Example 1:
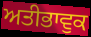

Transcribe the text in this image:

ਅਤੀਭਾਵੁਕ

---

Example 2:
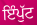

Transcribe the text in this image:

ਇੰਪੁੱਟ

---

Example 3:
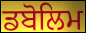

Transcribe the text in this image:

ਡਬੋਲਿਮ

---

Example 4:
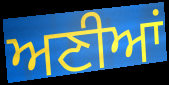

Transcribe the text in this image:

ਅਣੀਆਂ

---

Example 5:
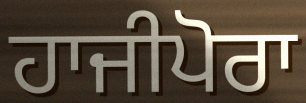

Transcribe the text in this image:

ਹਾਜੀਪੋਰਾ